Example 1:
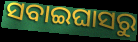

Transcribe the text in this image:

ସବାଇଘାସରୁ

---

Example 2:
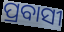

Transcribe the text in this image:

ପ୍ରବାସୀ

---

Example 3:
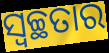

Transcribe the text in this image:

ସ୍ଵଚ୍ଛତାର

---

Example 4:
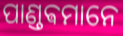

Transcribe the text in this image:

ପାଣ୍ଡଵମାନେ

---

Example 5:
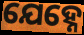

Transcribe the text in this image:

ଯେହ୍ନେ